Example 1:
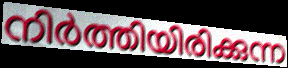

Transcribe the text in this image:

നിർത്തിയിരിക്കുന്ന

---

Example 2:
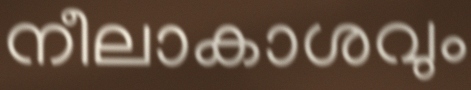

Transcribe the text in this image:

നീലാകാശവും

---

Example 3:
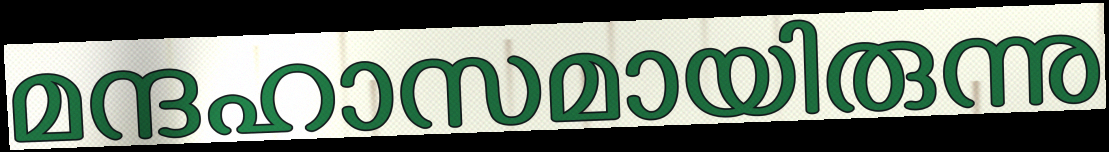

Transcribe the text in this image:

മന്ദഹാസമായിരുന്നു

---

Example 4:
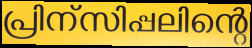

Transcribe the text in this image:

പ്രിന്സിപ്പലിന്റെ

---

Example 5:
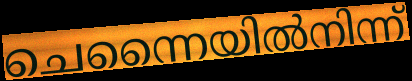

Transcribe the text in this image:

ചെന്നൈയിൽനിന്ന്